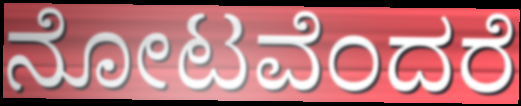
ನೋಟವೆಂದರೆ